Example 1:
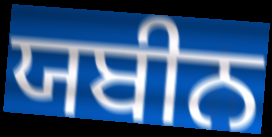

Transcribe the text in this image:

ਯਬੀਨ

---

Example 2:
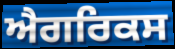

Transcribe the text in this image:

ਐਗਰਿਕਸ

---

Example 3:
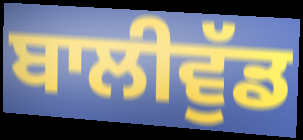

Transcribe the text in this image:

ਬਾਲੀਵੁੱਡ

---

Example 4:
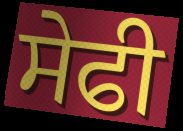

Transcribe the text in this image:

ਸੇਫੀ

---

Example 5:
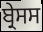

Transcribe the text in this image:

ਬ੍ਰੇਸਸ